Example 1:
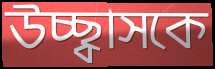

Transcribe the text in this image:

উচ্ছ্বাসকে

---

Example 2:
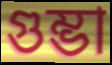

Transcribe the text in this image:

গুম্ভা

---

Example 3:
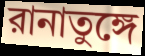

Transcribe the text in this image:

রানাতুঙ্গে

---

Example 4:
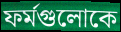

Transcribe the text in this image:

ফর্মগুলোকে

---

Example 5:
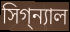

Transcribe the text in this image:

সিগ্‌ন্যাল